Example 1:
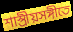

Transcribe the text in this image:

শাস্ত্রীয়সঙ্গীতে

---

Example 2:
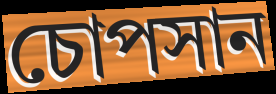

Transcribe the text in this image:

চোপসান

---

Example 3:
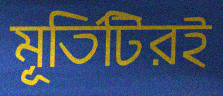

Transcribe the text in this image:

মূর্তিটিরই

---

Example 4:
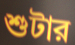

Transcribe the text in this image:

শুটার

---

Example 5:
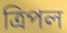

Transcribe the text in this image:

ত্রিপল